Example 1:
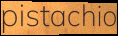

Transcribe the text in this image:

pistachio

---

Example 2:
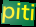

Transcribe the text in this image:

piti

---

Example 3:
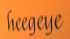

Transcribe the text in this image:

heegeye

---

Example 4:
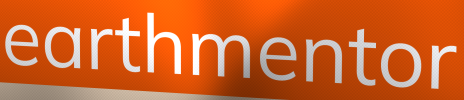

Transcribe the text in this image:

earthmentor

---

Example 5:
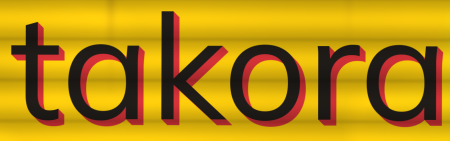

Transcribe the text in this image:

takora